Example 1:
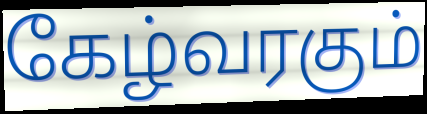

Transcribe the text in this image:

கேழ்வரகும்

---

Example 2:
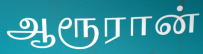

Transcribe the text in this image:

ஆரூரான்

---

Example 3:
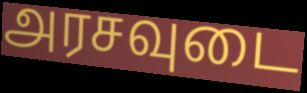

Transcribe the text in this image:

அரசவுடை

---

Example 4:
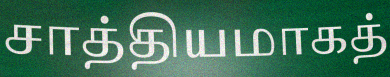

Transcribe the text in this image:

சாத்தியமாகத்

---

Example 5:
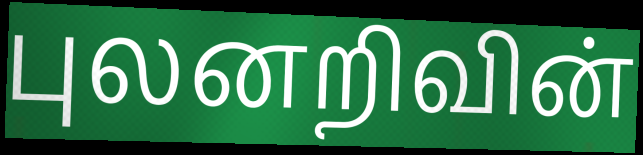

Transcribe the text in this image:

புலனறிவின்